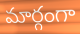
మార్గంగా